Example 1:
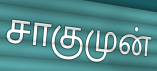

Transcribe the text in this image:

சாகுமுன்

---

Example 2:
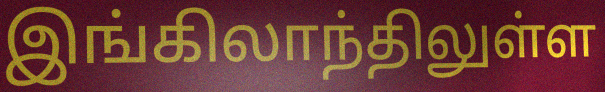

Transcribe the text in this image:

இங்கிலாந்திலுள்ள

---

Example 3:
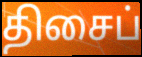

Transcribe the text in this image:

திசைப்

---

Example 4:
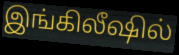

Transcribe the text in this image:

இங்கிலீஷில்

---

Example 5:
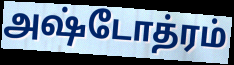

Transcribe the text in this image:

அஷ்டோத்ரம்